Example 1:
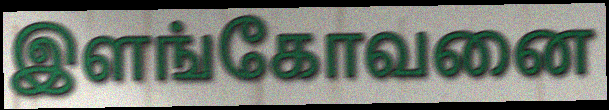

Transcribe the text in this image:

இளங்கோவனை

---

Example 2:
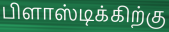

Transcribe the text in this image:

பிளாஸ்டிக்கிற்கு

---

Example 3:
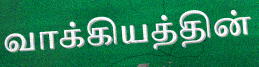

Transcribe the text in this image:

வாக்கியத்தின்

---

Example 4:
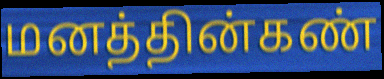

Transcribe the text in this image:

மனத்தின்கண்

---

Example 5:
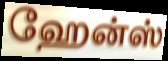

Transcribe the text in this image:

ஹேன்ஸ்